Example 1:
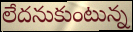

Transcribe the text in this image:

లేదనుకుంటున్న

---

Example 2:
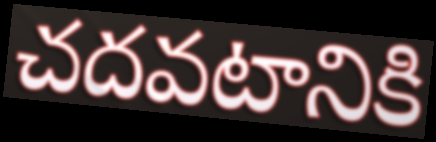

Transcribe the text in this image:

చదవటానికి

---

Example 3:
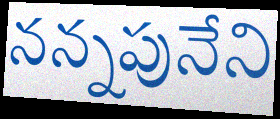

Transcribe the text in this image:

నన్నపునేని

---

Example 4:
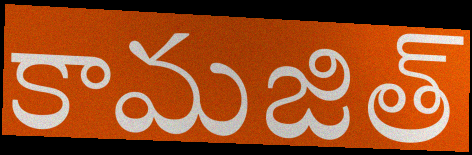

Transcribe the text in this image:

కామజిత్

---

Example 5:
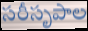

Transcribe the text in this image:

సరీసృపాల